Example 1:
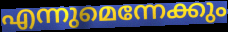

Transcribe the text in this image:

എന്നുമെന്നേക്കും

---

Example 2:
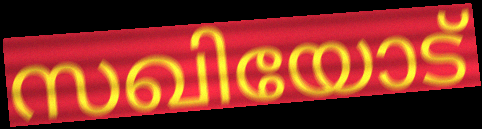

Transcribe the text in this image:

സഖിയോട്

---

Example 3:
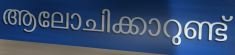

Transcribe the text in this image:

ആലോചിക്കാറുണ്ട്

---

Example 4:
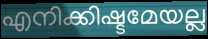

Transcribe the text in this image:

എനിക്കിഷ്ടമേയല്ല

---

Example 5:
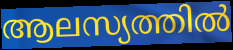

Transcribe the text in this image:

ആലസ്യത്തിൽ